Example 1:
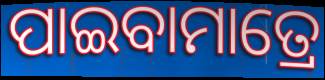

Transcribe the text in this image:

ପାଇବାମାତ୍ରେ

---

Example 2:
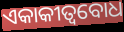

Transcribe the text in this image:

ଏକାକୀତ୍ୱବୋଧ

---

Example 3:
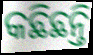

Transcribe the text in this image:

କଛିଛନ୍ତି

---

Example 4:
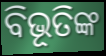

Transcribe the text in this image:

ବିଭୂତିଙ୍କ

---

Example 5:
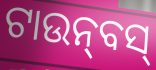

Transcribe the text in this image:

ଟାଉନ୍‍ବସ୍